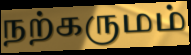
நற்கருமம்